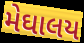
મેઘાલય